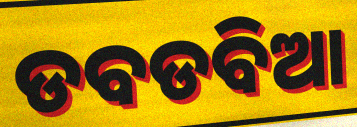
ଡବଡବିଆ